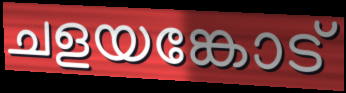
ചളയങ്കോട്